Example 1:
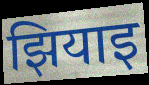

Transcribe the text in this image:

झियाइ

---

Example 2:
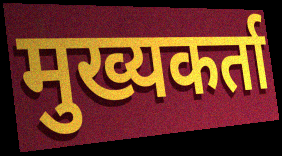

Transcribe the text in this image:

मुख्यकर्ता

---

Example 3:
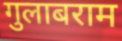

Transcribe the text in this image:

गुलाबराम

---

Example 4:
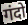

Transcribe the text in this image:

गंदो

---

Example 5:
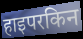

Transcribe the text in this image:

हाइपरकिन